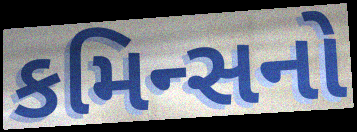
કમિન્સનો